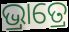
ଭ୍ରାତ୍ରେ